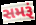
સમરૂં